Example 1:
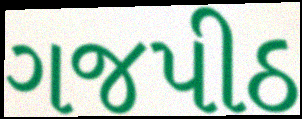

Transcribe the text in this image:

ગજપીઠ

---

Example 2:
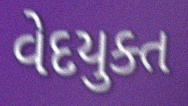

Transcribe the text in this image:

વેદયુક્ત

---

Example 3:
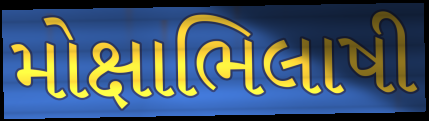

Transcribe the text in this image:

મોક્ષાભિલાષી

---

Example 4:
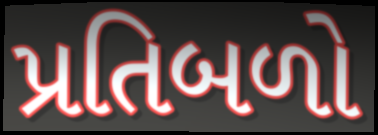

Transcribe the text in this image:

પ્રતિબળો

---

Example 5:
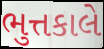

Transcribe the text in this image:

ભુત્તકાલે